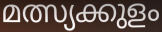
മത്സ്യക്കുളം